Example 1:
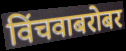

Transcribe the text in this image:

विंचवाबरोबर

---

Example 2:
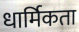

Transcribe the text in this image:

धार्मिकता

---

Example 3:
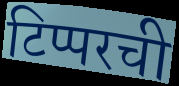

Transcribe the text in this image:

टिप्परची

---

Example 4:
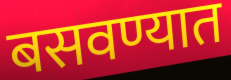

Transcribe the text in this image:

बसवण्यात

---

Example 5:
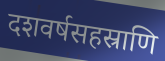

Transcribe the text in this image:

दशवर्षसहस्राणि